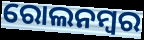
ରୋଲନମ୍ବର